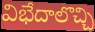
విభేదాలొచ్చి